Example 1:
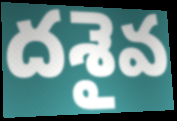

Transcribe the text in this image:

దశైవ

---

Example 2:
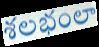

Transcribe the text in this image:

శలభంలా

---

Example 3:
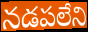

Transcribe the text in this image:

నడపలేని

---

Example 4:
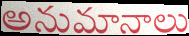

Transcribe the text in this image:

అనుమానాలు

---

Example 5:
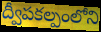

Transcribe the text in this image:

ద్వీపకల్పంలోని